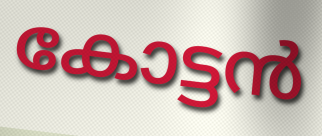
കോട്ടൻ